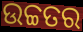
ଉଚ୍ଚତର